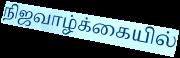
நிஜவாழ்க்கையில்